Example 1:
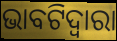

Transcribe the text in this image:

ଭାବଟିଦ୍ୱାରା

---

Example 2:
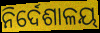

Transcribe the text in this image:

ନିର୍ଦେଶାଳୟ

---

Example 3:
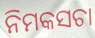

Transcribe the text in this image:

ନିମକସଚା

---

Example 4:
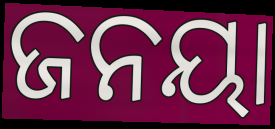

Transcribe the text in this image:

ଜନୟା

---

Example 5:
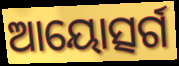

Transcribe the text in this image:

ଆୟୋତ୍ସର୍ଗ